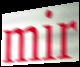
mir